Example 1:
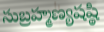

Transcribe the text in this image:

సుబ్రహ్మణ్యషష్ఠి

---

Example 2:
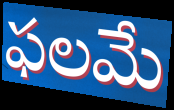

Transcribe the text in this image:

ఫలమే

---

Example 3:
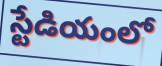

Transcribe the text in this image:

స్టేడియంలో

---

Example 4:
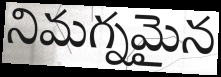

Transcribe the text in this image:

నిమగ్నమైన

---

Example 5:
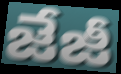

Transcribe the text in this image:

జేజీ